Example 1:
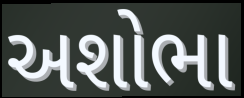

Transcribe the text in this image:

અશોભા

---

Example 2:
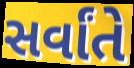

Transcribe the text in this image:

સર્વાંતે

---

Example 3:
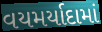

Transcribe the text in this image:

વયમર્યાદામાં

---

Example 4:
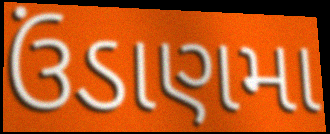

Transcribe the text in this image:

ઉંડાણમા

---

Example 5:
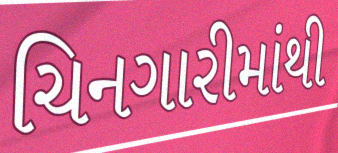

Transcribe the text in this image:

ચિનગારીમાંથી